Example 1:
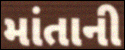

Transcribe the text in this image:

માંતાની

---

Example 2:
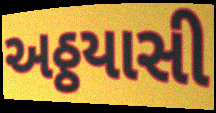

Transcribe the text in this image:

અઠ્ઠયાસી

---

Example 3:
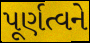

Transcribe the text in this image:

પૂર્ણત્વને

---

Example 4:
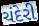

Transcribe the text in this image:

ચંદેરી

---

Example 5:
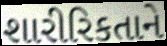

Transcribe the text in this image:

શારીરિકતાને